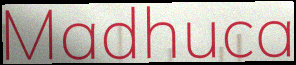
Madhuca